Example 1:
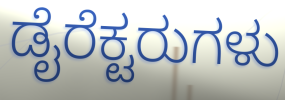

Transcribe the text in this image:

ಡೈರೆಕ್ಟರುಗಳು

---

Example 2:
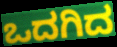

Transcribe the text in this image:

ಒದಗಿದ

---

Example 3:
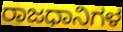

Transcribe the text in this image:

ರಾಜಧಾನಿಗಳ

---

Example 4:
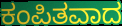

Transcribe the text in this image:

ಕಂಪಿತವಾದ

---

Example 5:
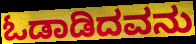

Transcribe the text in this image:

ಓಡಾಡಿದವನು